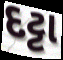
દટ્ટા